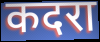
कदरा